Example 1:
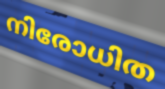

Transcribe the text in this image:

നിരോധിത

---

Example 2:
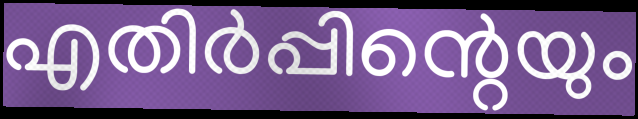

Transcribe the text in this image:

എതിർപ്പിന്റെയും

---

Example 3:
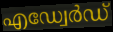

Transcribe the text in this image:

എഡ്വേർഡ്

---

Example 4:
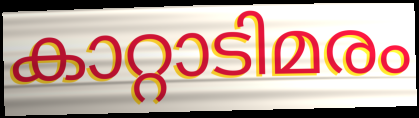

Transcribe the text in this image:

കാറ്റാടിമരം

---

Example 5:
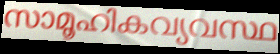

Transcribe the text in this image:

സാമൂഹികവ്യവസ്ഥ